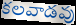
కలవాడవు